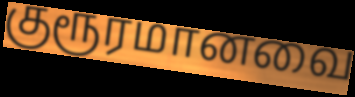
குரூரமானவை